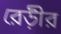
রেড়ীর